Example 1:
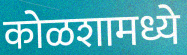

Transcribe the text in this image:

कोळशामध्ये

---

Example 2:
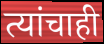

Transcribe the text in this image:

त्यांचाही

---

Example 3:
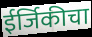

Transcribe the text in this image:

ईर्जिकीचा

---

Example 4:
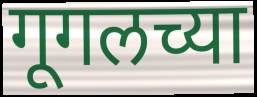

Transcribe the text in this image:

गूगलच्या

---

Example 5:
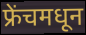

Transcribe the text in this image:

फ्रेंचमधून